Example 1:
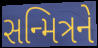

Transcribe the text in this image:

સન્મિત્રને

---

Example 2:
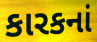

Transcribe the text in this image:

કારકનાં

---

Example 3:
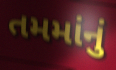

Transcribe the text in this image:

તમમાંનું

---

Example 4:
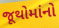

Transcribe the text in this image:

જૂથોમાંનો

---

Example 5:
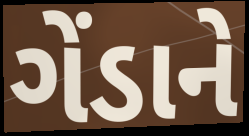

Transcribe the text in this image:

ગેંડાને